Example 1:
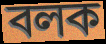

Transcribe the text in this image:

বলক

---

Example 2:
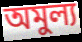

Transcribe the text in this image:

অমুল্য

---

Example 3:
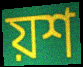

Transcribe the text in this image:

য়শ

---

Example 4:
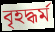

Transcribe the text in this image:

বৃহদ্ধৰ্ম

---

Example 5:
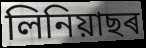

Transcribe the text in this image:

লিনিয়াছৰ